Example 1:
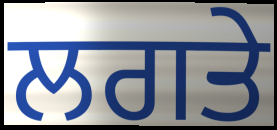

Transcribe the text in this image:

ਲਗਤੇ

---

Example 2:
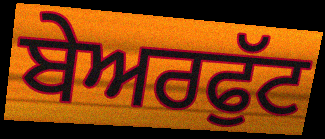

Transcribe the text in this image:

ਬੇਅਰਫੁੱਟ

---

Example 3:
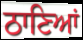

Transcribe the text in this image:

ਠਾਣਿਆਂ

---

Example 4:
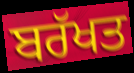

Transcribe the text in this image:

ਬਰੱਖਤ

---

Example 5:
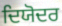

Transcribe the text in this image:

ਦਿਯੋਦਰ